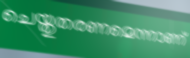
ചെയ്തുതരണമെന്നാണ്